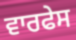
ਵਾਰਫੇਸ